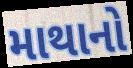
માથાનો